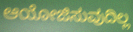
ಆಯೋಜಿಸುವುದಿಲ್ಲ